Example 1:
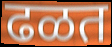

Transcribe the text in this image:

ढळत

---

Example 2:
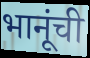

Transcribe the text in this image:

भानूंची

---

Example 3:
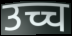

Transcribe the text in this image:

उच्च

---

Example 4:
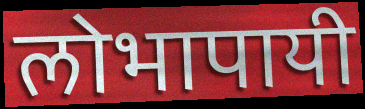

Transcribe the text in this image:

लोभापायी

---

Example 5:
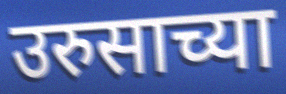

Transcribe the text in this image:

उरुसाच्या